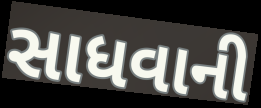
સાધવાની